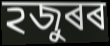
হজুৰৰ